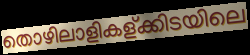
തൊഴിലാളികള്ക്കിടയിലെ